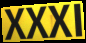
XXXI